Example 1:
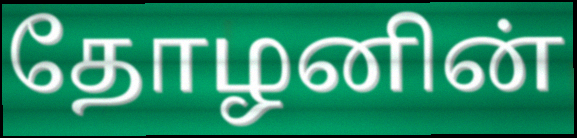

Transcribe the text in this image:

தோழனின்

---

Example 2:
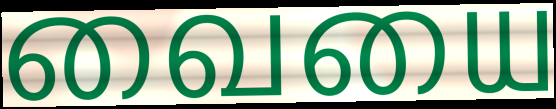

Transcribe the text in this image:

வையை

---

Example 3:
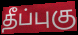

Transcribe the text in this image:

தீப்புகு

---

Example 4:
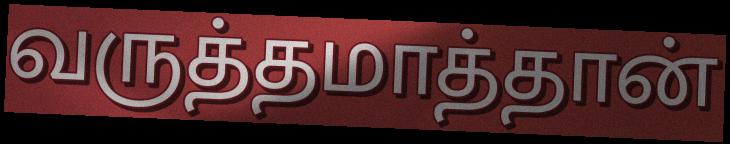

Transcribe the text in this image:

வருத்தமாத்தான்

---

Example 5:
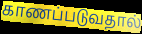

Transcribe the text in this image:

காணப்படுவதால்